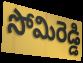
సోమిరెడ్డి